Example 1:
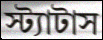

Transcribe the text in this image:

স্ট্যাটাস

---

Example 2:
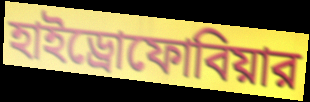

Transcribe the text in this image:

হাইড্রোফোবিয়ার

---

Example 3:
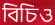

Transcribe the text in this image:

বিচিও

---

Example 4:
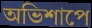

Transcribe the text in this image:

অভিশাপে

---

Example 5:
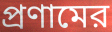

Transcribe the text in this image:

প্রণামের